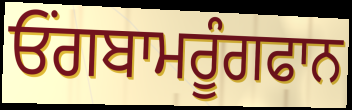
ਓਂਗਬਾਮਰੂੰਗਫਾਨ